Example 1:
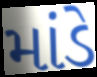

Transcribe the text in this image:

માંડે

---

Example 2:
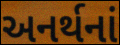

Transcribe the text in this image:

અનર્થનાં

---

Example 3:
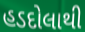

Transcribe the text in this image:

હડદોલાથી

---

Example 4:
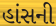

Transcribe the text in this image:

હાંસની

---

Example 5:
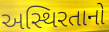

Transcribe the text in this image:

અસ્થિરતાનો